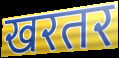
खरतर